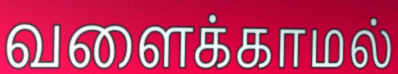
வளைக்காமல்